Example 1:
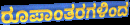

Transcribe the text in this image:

ರೂಪಾಂತರಗಳಿಂದ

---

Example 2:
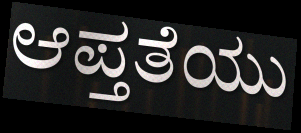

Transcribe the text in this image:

ಆಪ್ತತೆಯು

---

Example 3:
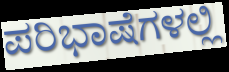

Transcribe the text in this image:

ಪರಿಭಾಷೆಗಳಲ್ಲಿ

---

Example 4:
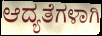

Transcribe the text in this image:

ಆದ್ಯತೆಗಳಾಗಿ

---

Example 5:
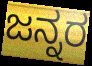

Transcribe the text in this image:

ಜನ್ನರ